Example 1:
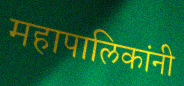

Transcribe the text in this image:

महापालिकांनी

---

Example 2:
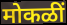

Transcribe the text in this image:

मोकळीं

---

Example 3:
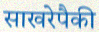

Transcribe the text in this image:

साखरेपैकी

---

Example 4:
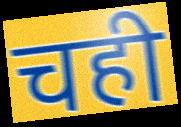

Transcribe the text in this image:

चही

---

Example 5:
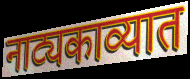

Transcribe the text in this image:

नाट्यकाव्यात